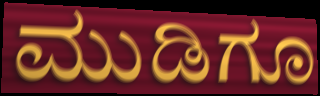
ಮುಡಿಗೂ